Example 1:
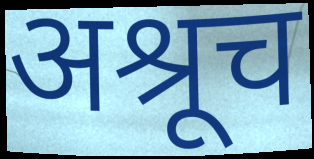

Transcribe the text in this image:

अश्रूच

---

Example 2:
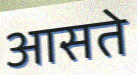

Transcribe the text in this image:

आसते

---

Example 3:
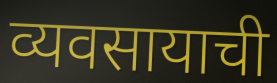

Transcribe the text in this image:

व्यवसायाची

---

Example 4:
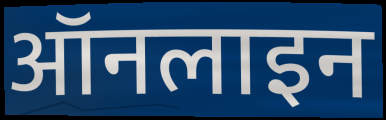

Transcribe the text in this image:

ऑनलाइन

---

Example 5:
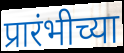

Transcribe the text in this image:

प्रारंभीच्या